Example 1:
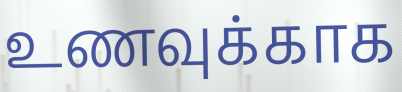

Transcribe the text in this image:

உணவுக்காக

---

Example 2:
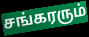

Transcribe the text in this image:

சங்கரரும்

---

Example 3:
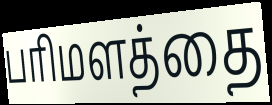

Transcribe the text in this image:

பரிமளத்தை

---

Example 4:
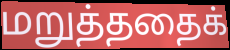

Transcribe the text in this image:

மறுத்ததைக்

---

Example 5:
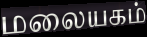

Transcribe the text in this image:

மலையகம்